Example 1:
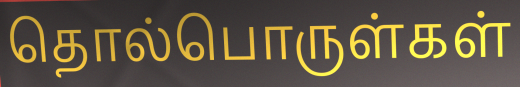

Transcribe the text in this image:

தொல்பொருள்கள்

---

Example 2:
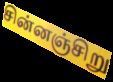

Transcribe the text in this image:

சின்னஞ்சிறு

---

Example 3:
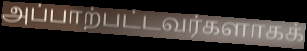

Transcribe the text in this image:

அப்பாற்பட்டவர்களாகக்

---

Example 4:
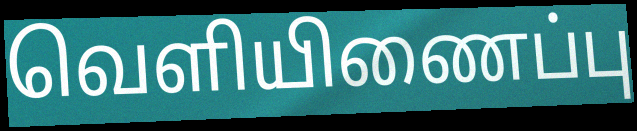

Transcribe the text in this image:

வெளியிணைப்பு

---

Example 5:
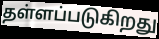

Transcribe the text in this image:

தள்ளப்படுகிறது